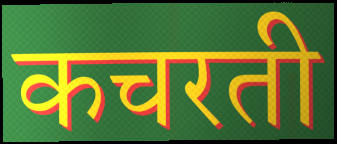
कचरती